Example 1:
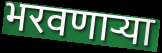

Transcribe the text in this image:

भरवणाऱ्या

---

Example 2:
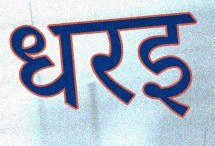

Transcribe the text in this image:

धरइ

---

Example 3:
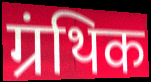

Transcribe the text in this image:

ग्रंथिक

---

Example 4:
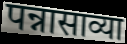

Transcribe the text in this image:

पन्नासाव्या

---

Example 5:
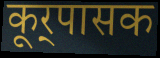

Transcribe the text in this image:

कूर्पासक